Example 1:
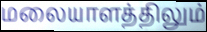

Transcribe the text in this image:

மலையாளத்திலும்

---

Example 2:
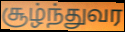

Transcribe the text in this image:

சூழ்ந்துவர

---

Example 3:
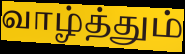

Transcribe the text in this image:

வாழ்த்தும்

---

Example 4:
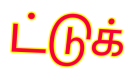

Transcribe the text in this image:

ட்டுக்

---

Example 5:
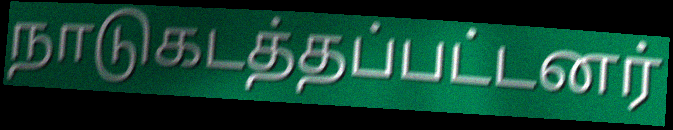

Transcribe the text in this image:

நாடுகடத்தப்பட்டனர்